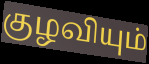
குழவியும்